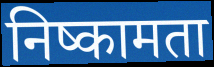
निष्कामता